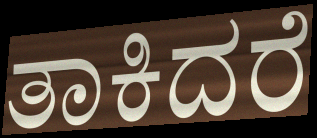
ತಾಕಿದರೆ